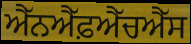
ਐੱਨਐੱਫ਼ਐੱਚਐੱਸ